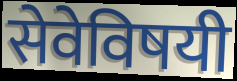
सेवेविषयी